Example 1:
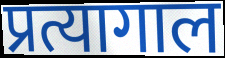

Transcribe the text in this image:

प्रत्यागाल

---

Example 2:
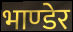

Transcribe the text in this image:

भाण्‍डेर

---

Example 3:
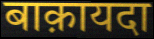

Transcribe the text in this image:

बाक़ायदा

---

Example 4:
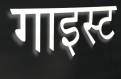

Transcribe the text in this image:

गाइस्ट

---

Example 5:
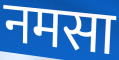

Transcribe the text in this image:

नमसा